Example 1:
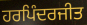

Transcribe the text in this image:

ਹਰਪਿੰਦਰਜੀਤ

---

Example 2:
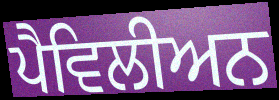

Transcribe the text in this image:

ਪੈਵਿਲੀਅਨ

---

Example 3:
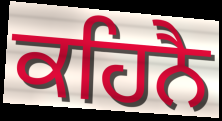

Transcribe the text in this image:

ਕਹਿਨੈ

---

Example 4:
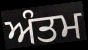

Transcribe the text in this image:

ਅੰਤਮ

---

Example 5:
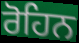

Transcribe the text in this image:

ਰੋਹਿਨ